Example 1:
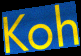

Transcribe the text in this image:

Koh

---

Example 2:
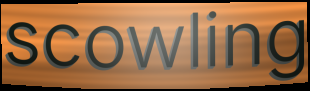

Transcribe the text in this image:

scowling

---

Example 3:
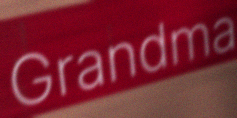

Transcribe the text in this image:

Grandma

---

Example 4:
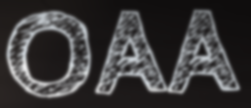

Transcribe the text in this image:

OAA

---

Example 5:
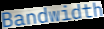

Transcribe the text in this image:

Bandwidth